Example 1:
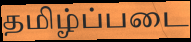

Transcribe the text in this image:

தமிழ்ப்படை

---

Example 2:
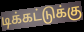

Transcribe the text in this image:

டிக்கட்டுக்கு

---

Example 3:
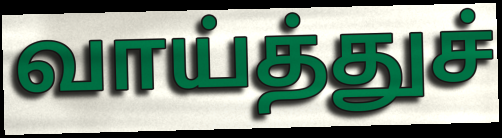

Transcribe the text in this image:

வாய்த்துச்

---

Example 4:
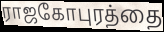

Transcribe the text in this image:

ராஜகோபுரத்தை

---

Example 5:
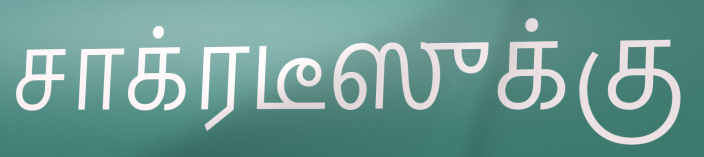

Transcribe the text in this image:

சாக்ரடீஸுக்கு